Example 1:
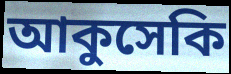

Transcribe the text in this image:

আকুসেকি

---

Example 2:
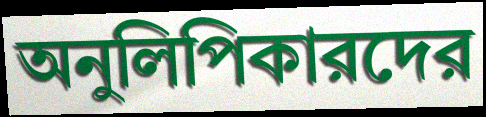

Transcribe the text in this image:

অনুলিপিকারদের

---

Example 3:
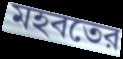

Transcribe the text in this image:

মহবতের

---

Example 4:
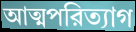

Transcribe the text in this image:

আত্মপরিত্যাগ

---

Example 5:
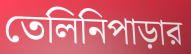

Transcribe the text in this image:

তেলিনিপাড়ার